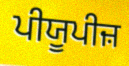
ਪੀਯੂਪੀਜ਼